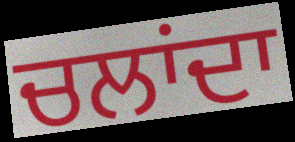
ਚਲਾਂਦਾ